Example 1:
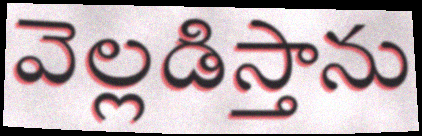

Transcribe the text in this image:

వెల్లడిస్తాను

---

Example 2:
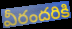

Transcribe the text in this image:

వీరందరికి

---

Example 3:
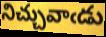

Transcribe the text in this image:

నిచ్చువాఁడు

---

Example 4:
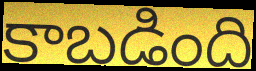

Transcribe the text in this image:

కాబడింది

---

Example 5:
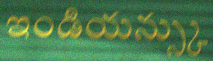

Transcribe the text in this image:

ఇండియన్స్కు